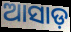
ଆସାଡ଼